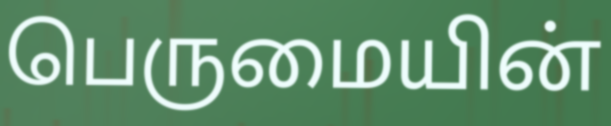
பெருமையின்